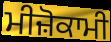
ਮੀਜ਼ੋਕਾਮੀ